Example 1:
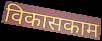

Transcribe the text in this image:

विकासकाम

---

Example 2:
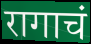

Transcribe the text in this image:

रागाचं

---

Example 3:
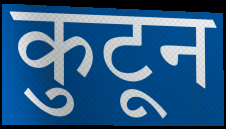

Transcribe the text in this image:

कुटून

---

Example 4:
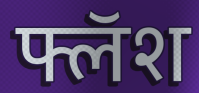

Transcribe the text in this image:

फ्लॅश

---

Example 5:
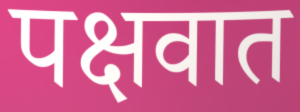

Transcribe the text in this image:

पक्षवात